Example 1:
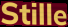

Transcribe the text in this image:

Stille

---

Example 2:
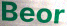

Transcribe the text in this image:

Beor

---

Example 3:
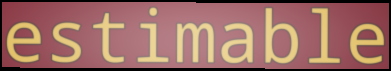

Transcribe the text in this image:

estimable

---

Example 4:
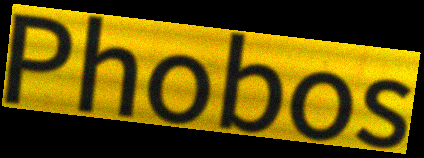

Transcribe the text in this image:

Phobos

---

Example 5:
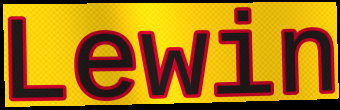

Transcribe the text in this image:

Lewin